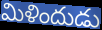
మిళిందుడు